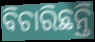
ବିଚାରିଛନ୍ତି